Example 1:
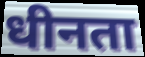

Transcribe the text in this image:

धीनता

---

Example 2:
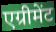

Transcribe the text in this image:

एग्रीमेंट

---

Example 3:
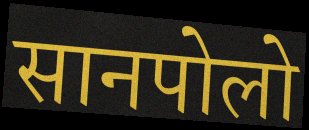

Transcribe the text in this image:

सानपोलो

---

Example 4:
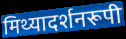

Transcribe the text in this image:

मिथ्यादर्शनरूपी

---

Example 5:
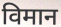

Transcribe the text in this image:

विमान